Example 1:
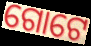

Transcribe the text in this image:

ଗୋଟେ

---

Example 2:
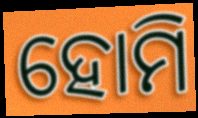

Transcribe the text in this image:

ହୋମି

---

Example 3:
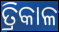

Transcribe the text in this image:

ତ୍ରିକାଳ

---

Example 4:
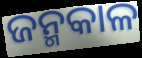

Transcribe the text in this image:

ଜନ୍ମକାଳ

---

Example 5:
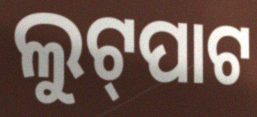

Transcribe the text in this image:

ଲୁଟ୍‍ପାଟ